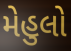
મેહુલો